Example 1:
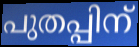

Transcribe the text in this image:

പുതപ്പിന്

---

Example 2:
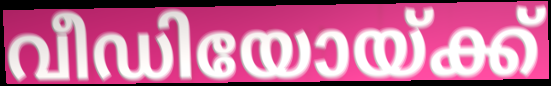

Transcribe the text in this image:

വീഡിയോയ്ക്ക്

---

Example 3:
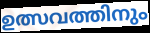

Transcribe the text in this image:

ഉത്സവത്തിനും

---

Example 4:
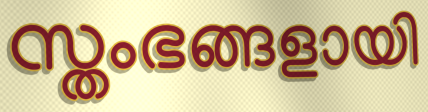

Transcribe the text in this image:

സ്തംഭങ്ങളായി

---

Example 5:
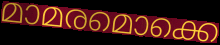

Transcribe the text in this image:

മാമരമൊക്കെ